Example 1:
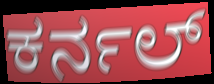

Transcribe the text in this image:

ಕರ್ನಲ್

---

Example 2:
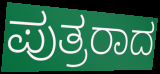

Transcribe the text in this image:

ಪುತ್ರರಾದ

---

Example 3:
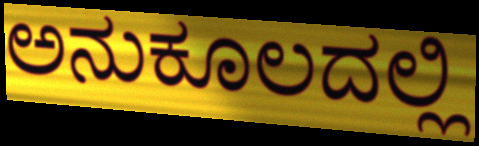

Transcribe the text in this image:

ಅನುಕೂಲದಲ್ಲಿ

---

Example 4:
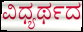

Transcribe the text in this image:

ವಿಧ್ಯರ್ಥದ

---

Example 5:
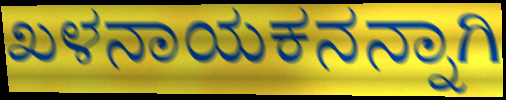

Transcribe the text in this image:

ಖಳನಾಯಕನನ್ನಾಗಿ